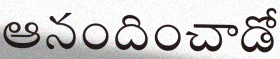
ఆనందించాడో